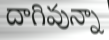
దాగివున్నా